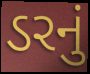
ડરનું